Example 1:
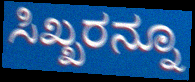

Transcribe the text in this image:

ಸಿಖ್ಖರನ್ನೂ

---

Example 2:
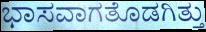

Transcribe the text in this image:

ಭಾಸವಾಗತೊಡಗಿತ್ತು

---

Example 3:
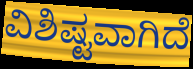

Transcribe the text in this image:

ವಿಶಿಷ್ಟವಾಗಿದೆ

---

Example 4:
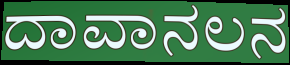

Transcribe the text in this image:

ದಾವಾನಲನ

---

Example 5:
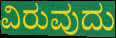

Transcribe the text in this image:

ವಿರುವುದು